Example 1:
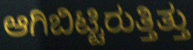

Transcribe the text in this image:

ಆಗಿಬಿಟ್ಟಿರುತ್ತಿತ್ತು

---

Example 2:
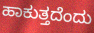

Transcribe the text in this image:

ಹಾಕುತ್ತದೆಂದು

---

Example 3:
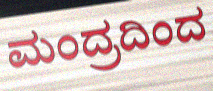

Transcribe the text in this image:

ಮಂದ್ರದಿಂದ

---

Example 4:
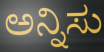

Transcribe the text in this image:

ಅನ್ನಿಸು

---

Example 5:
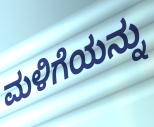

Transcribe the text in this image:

ಮಳಿಗೆಯನ್ನು